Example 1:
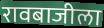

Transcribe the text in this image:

रावबाजीला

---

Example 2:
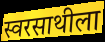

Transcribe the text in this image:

स्वरसाथीला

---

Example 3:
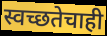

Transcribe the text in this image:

स्वच्छतेचाही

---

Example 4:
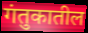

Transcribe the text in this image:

गंतुकातील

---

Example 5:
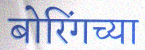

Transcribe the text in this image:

बोरिंगच्या